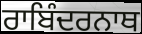
ਰਾਬਿੰਦਰਨਾਥ